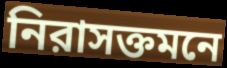
নিরাসক্তমনে